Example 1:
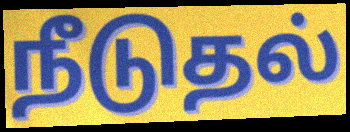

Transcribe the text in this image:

நீடுதல்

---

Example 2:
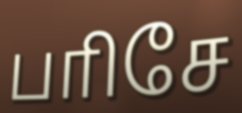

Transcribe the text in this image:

பரிசே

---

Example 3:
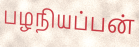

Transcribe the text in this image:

பழநியப்பன்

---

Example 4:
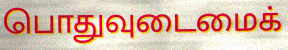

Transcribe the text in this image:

பொதுவுடைமைக்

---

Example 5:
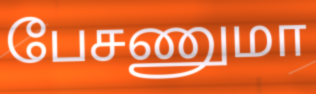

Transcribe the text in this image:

பேசணுமா